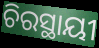
ଚିରସ୍ଥାୟୀ